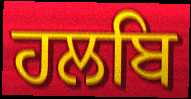
ਹਲਬਿ